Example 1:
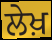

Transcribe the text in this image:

ਲੇਖ਼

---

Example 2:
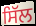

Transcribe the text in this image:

ਸਿੱਲ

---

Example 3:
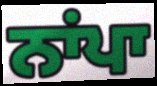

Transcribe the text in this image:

ਨਾਂਪਾ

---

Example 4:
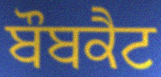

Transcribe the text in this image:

ਬੌਬਕੈਟ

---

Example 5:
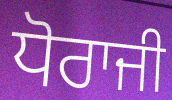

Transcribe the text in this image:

ਧੋਰਾਜੀ